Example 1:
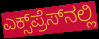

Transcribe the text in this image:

ಎಕ್ಸ್‌ಪ್ರೆಸ್‌ನಲ್ಲಿ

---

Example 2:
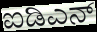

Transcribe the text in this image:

ಐಡಿಎನ್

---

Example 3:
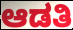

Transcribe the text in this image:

ಆಡತಿ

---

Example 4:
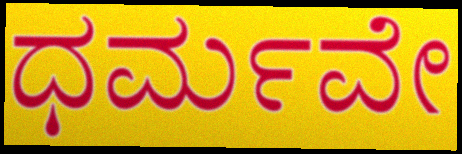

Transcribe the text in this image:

ಧರ್ಮವೇ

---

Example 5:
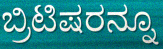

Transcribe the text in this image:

ಬ್ರಿಟಿಷರನ್ನೂ